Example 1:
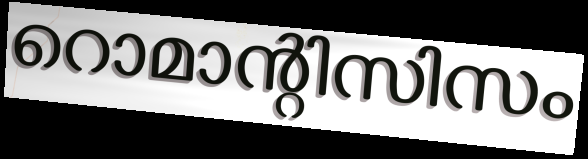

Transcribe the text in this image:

റൊമാന്റിസിസം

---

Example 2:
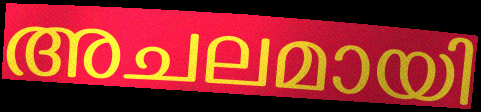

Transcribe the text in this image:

അചലമായി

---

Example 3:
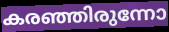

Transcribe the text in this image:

കരഞ്ഞിരുന്നോ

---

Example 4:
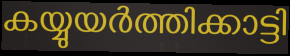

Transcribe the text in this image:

കയ്യുയർത്തിക്കാട്ടി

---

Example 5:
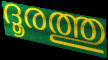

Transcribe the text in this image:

ദൂരത്തു